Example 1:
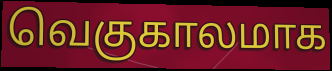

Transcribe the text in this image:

வெகுகாலமாக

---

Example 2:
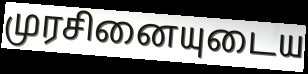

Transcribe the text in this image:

முரசினையுடைய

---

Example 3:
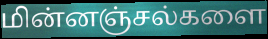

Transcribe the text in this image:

மின்னஞ்சல்களை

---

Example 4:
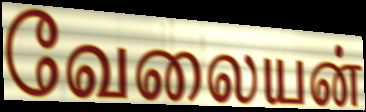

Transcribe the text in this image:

வேலையன்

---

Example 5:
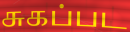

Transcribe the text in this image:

சுகப்பட